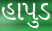
હાપુડ